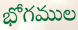
భోగముల